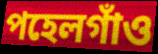
পহেলগাঁও